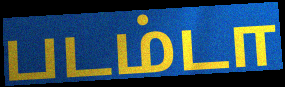
படம்டா